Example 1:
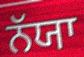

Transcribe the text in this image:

ਨੱਯਾ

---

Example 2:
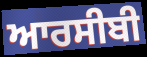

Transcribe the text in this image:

ਆਰਸੀਬੀ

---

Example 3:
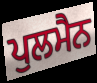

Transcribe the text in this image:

ਪੁਲਮੈਨ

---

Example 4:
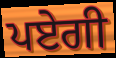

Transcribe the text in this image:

ਪਏਗੀ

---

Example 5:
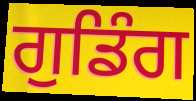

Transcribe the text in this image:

ਗੁਡਿੰਗ